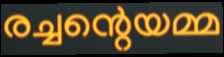
രച്ചന്റെയമ്മ